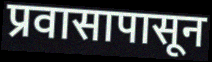
प्रवासापासून